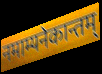
नमाम्यनेकान्तम्